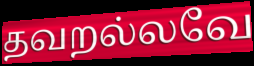
தவறல்லவே